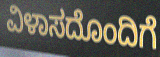
ವಿಳಾಸದೊಂದಿಗೆ